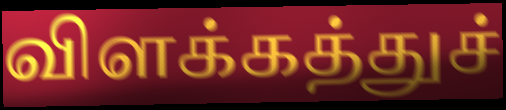
விளக்கத்துச்